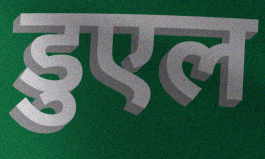
डुएल